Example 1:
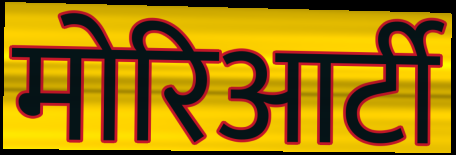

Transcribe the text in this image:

मोरिआर्टी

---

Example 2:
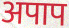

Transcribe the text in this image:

अपाप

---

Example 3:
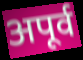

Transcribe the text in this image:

अपूर्व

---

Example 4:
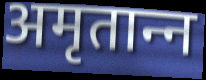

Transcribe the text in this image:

अमृतान्न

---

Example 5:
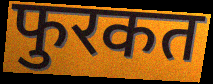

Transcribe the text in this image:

फुरकत